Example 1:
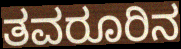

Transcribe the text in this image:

ತವರೂರಿನ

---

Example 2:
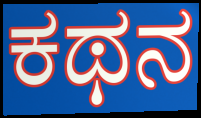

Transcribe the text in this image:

ಕಥನ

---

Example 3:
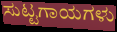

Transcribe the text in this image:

ಸುಟ್ಟಗಾಯಗಳು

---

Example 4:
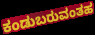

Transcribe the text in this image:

ಕಂಡುಬರುವಂತಹ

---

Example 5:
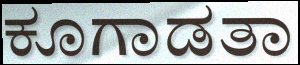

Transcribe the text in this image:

ಕೂಗಾಡತಾ